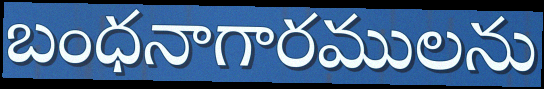
బంధనాగారములను